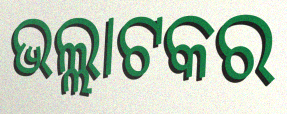
ଭଲ୍ଲାଟକର